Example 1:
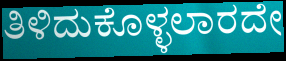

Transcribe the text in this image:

ತಿಳಿದುಕೊಳ್ಳಲಾರದೇ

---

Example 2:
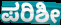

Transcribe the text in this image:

ಪರಿಶೀ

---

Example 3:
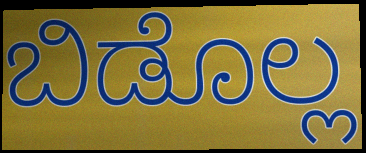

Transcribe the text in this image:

ಬಿಡೊಲ್ಲ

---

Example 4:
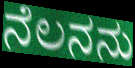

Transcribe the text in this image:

ನೆಲನನು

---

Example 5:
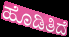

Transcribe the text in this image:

ಹೊಡಿತಿದೆ